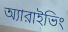
অ্যারাইভিং